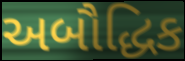
અબૌદ્ધિક